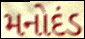
મનોદંડ